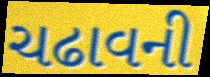
ચઢાવની